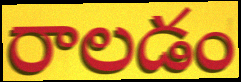
రాలడం